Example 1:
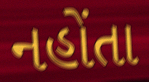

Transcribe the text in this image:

નહોંતા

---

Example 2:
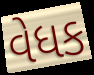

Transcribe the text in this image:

વેધક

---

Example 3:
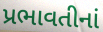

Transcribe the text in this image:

પ્રભાવતીનાં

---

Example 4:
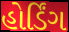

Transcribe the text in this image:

હોર્ડિંગ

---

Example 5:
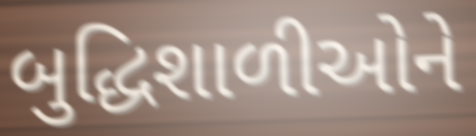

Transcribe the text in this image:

બુદ્ધિશાળીઓને